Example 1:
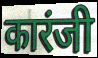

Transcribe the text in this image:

कारंजी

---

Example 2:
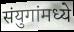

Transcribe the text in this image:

संयुगांमध्ये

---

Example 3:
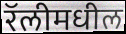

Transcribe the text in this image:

रॅलीमधील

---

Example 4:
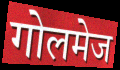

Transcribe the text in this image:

गोलमेज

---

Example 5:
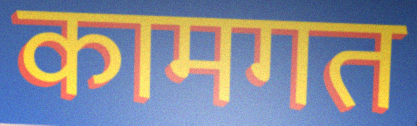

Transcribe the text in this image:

कामगत